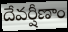
దేవర్షీణాం